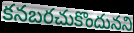
కనబరచుకొందునని